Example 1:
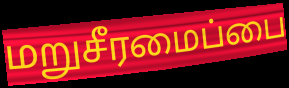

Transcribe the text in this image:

மறுசீரமைப்பை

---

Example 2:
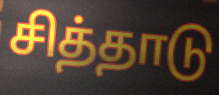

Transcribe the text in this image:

சித்தாடு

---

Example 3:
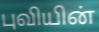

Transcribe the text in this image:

புவியின்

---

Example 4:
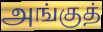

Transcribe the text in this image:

அங்குத்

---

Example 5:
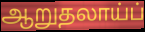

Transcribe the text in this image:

ஆறுதலாய்ப்